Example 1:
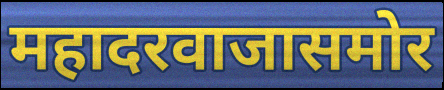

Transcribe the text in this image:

महादरवाजासमोर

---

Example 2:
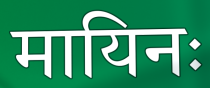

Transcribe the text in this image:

मायिनः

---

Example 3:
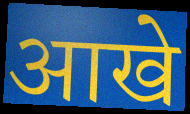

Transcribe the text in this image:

आखे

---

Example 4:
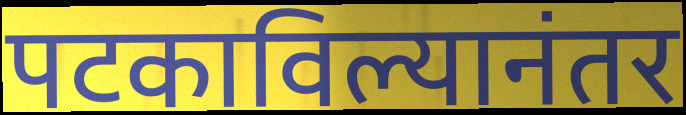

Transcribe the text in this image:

पटकाविल्यानंतर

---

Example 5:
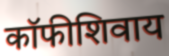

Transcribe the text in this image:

कॉफीशिवाय